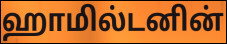
ஹாமில்டனின்